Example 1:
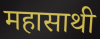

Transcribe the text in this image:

महासाथी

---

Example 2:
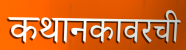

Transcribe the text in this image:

कथानकावरची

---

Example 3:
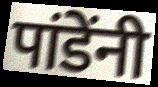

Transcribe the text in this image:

पांडेंनी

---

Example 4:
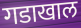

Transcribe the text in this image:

गडाखाल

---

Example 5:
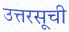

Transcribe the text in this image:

उत्तरसूची